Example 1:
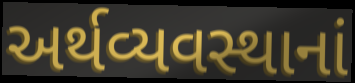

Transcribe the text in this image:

અર્થવ્યવસ્થાનાં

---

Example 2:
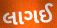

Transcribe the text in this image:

લાગઈ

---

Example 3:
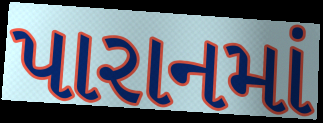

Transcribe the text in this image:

પારાનમાં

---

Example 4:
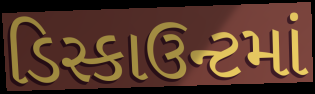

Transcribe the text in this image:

ડિસ્કાઉન્ટમાં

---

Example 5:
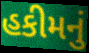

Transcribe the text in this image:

હકીમનું